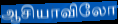
ஆசியாவிலோ